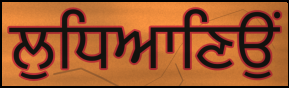
ਲੁਧਿਆਣਿਉਂ